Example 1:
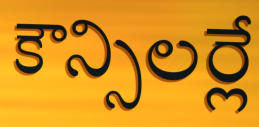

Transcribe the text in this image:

కౌన్సిలర్లే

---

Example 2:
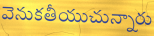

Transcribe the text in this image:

వెనుకతీయుచున్నారు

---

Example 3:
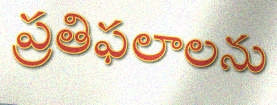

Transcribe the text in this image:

ప్రతిఫలాలను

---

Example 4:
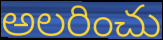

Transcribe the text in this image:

అలరించు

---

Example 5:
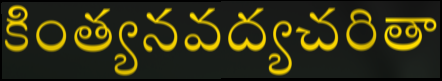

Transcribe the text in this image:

కింత్యనవద్యచరితా